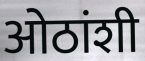
ओठांशी